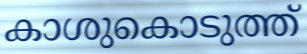
കാശുകൊടുത്ത്